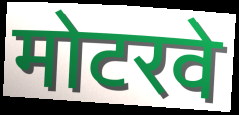
मोटरवे